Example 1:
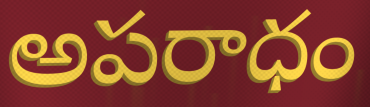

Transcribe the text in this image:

అపరాధం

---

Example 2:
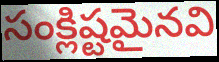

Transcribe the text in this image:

సంక్లిష్టమైనవి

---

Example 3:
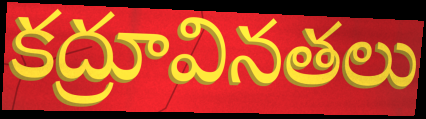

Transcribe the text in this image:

కద్రూవినతలు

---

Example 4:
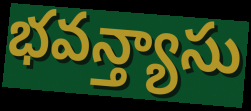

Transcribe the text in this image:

భవన్త్యాసు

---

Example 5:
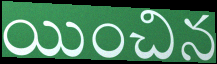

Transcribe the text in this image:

యించిన